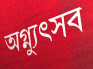
অগ্ন্যুৎসব